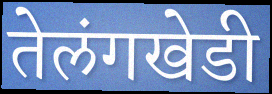
तेलंगखेडी